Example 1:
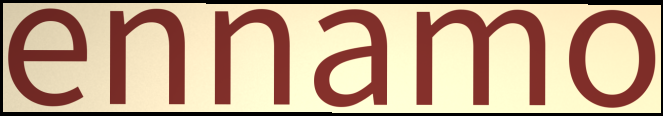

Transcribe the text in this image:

ennamo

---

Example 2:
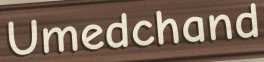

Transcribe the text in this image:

Umedchand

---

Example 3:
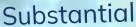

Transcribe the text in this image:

Substantial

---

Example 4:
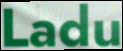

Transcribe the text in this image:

Ladu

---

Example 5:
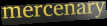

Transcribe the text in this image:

mercenary